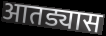
आतड्यास